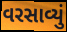
વરસાવ્યું